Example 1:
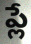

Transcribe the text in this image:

ప్లే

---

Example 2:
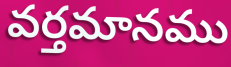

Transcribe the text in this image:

వర్తమానము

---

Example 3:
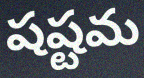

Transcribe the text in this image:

షష్టమ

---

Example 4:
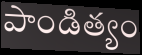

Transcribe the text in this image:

పాండిత్యం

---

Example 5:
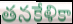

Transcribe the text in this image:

తనకేళికా